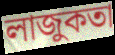
লাজুকতা